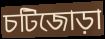
চটিজোড়া